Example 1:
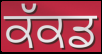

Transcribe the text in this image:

ਕੱਕਡ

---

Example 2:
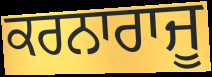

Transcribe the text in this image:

ਕਰਨਾਰਾਜੂ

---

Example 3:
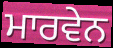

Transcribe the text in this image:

ਮਾਰਵੇਨ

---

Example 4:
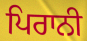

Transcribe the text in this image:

ਪਿਰਾਨੀ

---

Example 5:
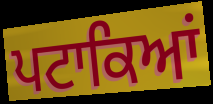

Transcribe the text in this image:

ਪਟਾਕਿਆਂ